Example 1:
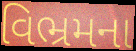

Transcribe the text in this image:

વિભ્રમના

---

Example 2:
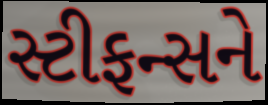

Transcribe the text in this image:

સ્ટીફન્સને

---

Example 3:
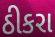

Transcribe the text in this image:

ઠીકરા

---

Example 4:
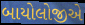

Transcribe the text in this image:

બાયોલોજીએ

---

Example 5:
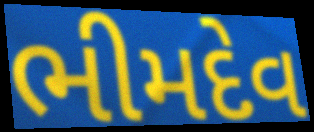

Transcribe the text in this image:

ભીમદેવ